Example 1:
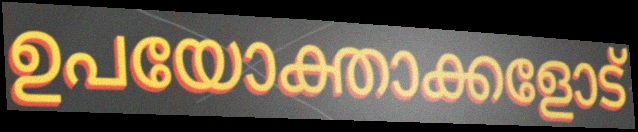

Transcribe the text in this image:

ഉപയോക്താക്കളോട്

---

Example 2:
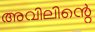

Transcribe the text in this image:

അവിലിന്റെ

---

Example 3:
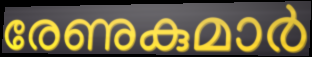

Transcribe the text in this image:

രേണുകുമാർ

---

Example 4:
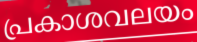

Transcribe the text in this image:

പ്രകാശവലയം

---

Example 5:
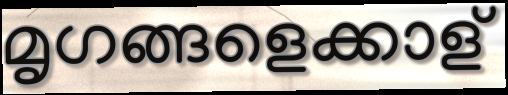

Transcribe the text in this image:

മൃഗങ്ങളെക്കാള്